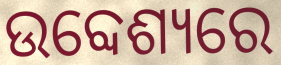
ଉବ୍ଦେଶ୍ୟରେ